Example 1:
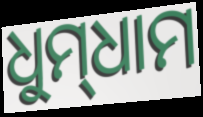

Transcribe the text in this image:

ଧୁମ୍‌ଧାମ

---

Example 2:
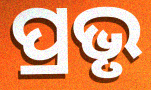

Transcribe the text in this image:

ପ୍ରଭୃ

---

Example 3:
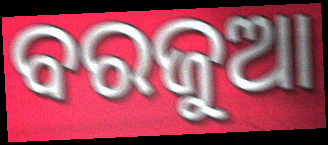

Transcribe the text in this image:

ବରଜୁଆ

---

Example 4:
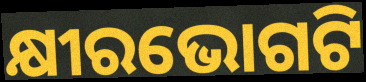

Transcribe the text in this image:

କ୍ଷୀରଭୋଗଟି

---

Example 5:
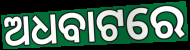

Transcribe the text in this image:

ଅଧବାଟରେ